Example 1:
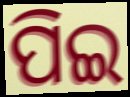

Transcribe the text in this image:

ପିଇ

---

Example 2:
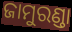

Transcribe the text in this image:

ଜାମୁରଣ୍ଡା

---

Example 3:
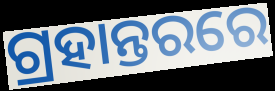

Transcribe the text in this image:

ଗ୍ରହାନ୍ତରରେ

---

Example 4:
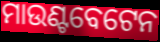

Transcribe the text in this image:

ମାଉଣ୍ଟବେଟେନ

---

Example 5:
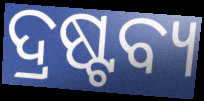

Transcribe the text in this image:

ଦ୍ରଷ୍ଟବ୍ୟ